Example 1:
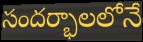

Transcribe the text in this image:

సందర్భాలలోనే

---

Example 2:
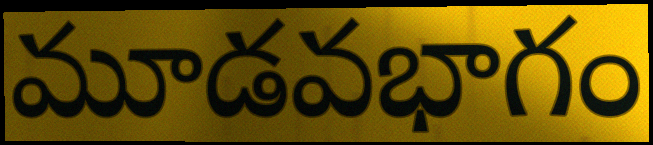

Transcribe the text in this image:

మూడవభాగం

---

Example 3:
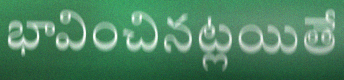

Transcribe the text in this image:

భావించినట్లయితే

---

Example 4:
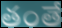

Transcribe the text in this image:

తంతే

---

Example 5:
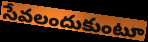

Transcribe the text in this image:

సేవలందుకుంటూ